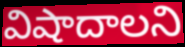
విషాదాలని